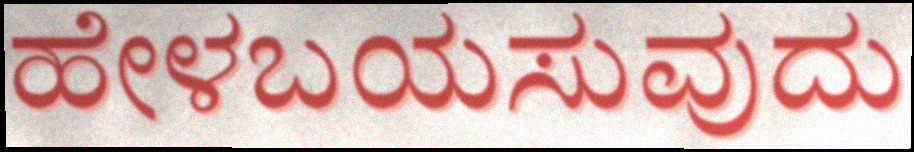
ಹೇಳಬಯಸುವುದು